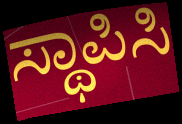
ಸ್ಥಾಪಿಸಿ